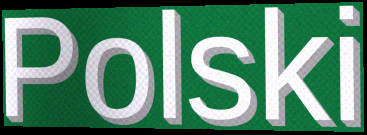
Polski